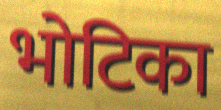
भोटिका